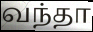
வந்தா